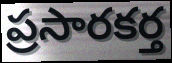
ప్రసారకర్త